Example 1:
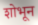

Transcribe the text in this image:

शोभून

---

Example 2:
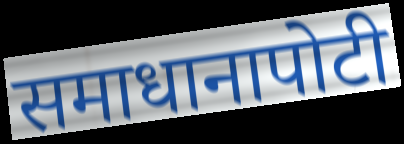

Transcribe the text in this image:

समाधानापोटी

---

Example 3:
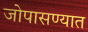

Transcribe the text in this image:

जोपासण्यात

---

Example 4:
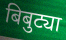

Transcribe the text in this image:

बिबुट्या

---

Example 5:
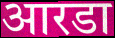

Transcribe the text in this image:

आरडा